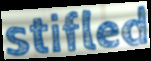
stifled